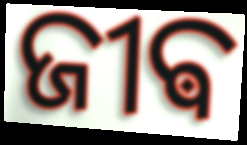
ଜୀଵ